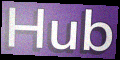
Hub